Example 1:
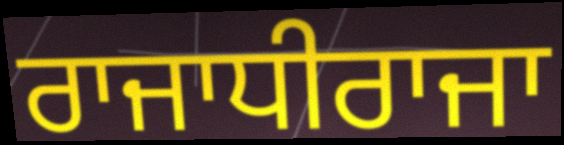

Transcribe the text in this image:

ਰਾਜਾਧੀਰਾਜਾ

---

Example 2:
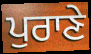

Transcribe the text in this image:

ਪੁਰਾਣੇ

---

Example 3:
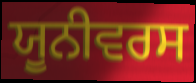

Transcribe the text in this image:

ਯੂਨੀਵਰਸ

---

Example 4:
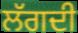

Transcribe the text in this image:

ਲੱਗਦੀ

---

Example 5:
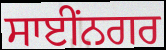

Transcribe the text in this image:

ਸਾਈਂਨਗਰ